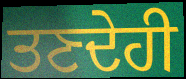
ਤਣਦੇਹੀ